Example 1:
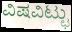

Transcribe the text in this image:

ವಿಷವಿಟ್ಟು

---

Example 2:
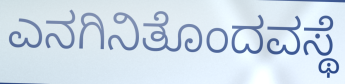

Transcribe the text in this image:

ಎನಗಿನಿತೊಂದವಸ್ಥೆ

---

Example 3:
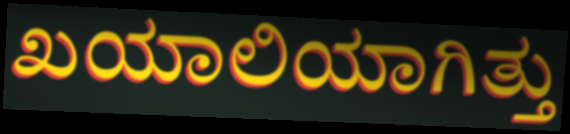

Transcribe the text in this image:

ಖಯಾಲಿಯಾಗಿತ್ತು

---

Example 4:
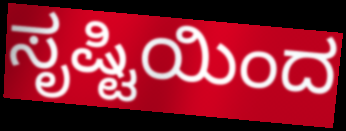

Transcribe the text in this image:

ಸೃಷ್ಟಿಯಿಂದ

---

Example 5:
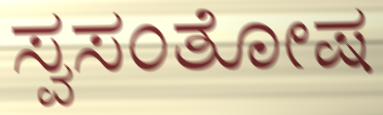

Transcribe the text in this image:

ಸ್ವಸಂತೋಷ